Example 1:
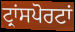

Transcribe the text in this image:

ਟ੍ਰਾਂਸਪੋਰਟਾਂ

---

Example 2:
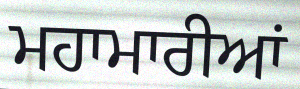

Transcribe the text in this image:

ਮਹਾਮਾਰੀਆਂ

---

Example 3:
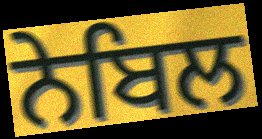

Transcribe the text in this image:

ਨੇਬਿਲ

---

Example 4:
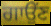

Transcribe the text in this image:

ਗਾਉਂਣ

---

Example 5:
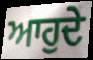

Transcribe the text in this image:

ਆਹੁਦੇ